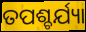
ତପଶ୍ଚର୍ଯ୍ୟା